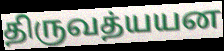
திருவத்யயன